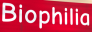
Biophilia